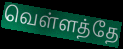
வெள்ளத்தே